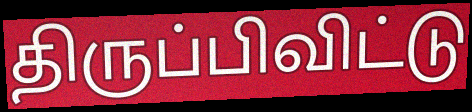
திருப்பிவிட்டு